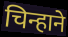
चिन्हाने